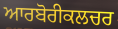
ਆਰਬੋਰੀਕਲਚਰ